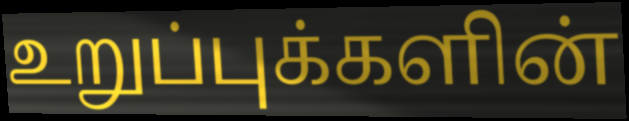
உறுப்புக்களின்